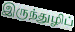
இருந்துழிப்